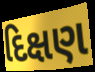
દિક્ષણ